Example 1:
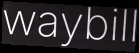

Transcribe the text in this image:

waybill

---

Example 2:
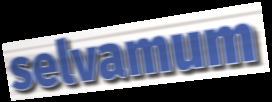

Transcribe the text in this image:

selvamum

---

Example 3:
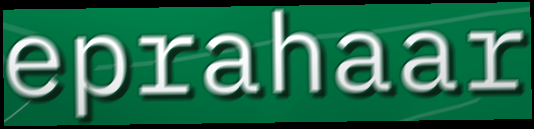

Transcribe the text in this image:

eprahaar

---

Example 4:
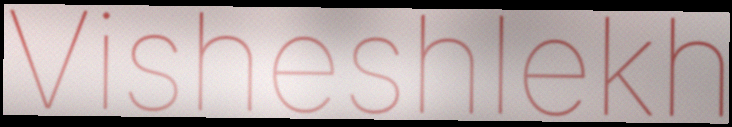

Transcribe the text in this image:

Visheshlekh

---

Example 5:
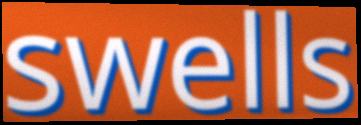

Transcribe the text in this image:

swells